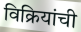
विक्रियांची